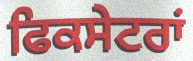
ਫਿਕਸੇਟਰਾਂ